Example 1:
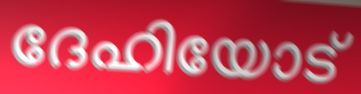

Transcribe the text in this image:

ദേഹിയോട്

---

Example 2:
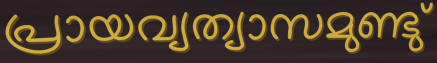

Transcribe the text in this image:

പ്രായവ്യത്യാസമുണ്ടു്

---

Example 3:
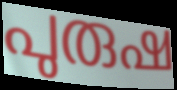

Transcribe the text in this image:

പുരുഷ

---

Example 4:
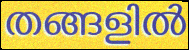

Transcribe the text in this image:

തങ്ങളിൽ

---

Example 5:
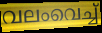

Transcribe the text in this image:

വലംവെച്ച്